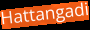
Hattangadi